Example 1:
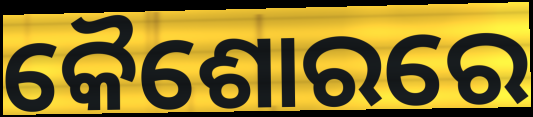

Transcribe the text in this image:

କୈଶୋରରେ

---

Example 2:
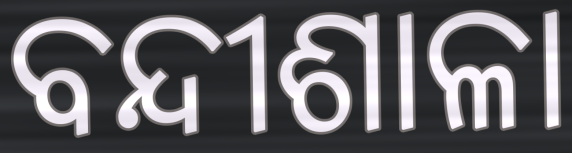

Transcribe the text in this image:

ବନ୍ଦୀଶାଳା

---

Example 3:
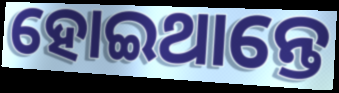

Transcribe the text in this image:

ହୋଇଥାନ୍ତେ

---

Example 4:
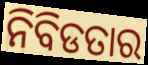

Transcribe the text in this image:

ନିବିଡତାର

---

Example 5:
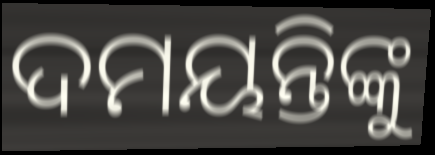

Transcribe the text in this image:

ଦମୟନ୍ତିଙ୍କୁ